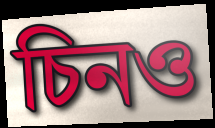
চিনও